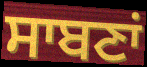
ਸਾਬਣਾਂ